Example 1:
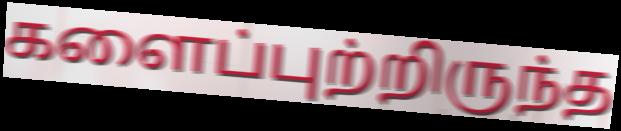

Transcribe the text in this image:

களைப்புற்றிருந்த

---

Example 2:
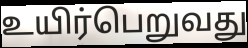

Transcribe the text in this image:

உயிர்பெறுவது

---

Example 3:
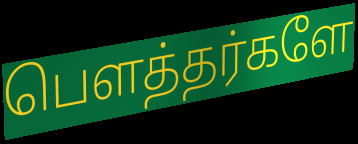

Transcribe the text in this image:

பௌத்தர்களே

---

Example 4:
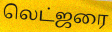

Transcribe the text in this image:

லெட்ஜரை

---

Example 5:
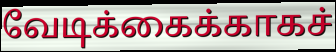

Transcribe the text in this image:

வேடிக்கைக்காகச்